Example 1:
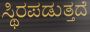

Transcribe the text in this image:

ಸ್ಥಿರಪಡುತ್ತದೆ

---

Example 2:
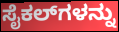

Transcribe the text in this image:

ಸೈಕಲ್‌ಗಳನ್ನು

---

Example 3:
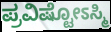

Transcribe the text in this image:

ಪ್ರವಿಷ್ಟೋಽಸ್ಮಿ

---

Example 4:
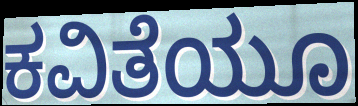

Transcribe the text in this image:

ಕವಿತೆಯೂ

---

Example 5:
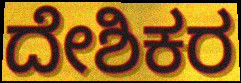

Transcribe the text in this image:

ದೇಶಿಕರ